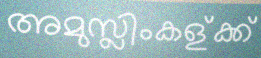
അമുസ്ലിംകള്ക്ക്